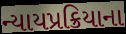
ન્યાયપ્રક્રિયાના